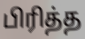
பிரித்த